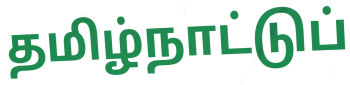
தமிழ்நாட்டுப்